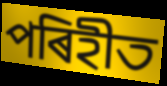
পৰিহীত